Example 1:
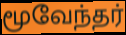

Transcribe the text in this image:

மூவேந்தர்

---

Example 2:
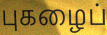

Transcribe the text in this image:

புகழைப்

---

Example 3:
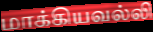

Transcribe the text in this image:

மாக்கியவல்லி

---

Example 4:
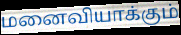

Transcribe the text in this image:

மனைவியாக்கும்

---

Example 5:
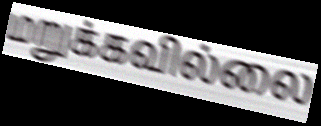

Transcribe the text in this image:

மறுக்கவில்லை